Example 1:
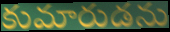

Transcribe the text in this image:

కుమారుడను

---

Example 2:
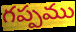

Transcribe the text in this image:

గప్పము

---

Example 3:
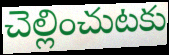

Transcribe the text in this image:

చెల్లించుటకు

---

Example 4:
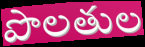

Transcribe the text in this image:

పొలతుల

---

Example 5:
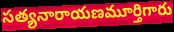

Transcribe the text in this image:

సత్యనారాయణమూర్తిగారు